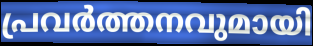
പ്രവർത്തനവുമായി